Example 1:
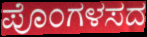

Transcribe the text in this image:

ಪೊಂಗಳಸದ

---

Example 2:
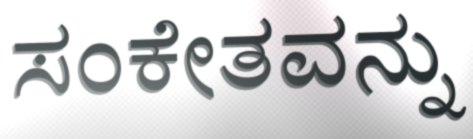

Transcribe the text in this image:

ಸಂಕೇತವನ್ನು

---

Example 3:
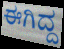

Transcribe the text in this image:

ಈಗಿದ್ದ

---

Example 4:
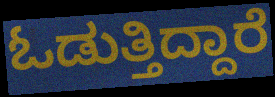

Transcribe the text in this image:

ಓಡುತ್ತಿದ್ದಾರೆ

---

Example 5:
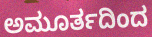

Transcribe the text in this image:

ಅಮೂರ್ತದಿಂದ